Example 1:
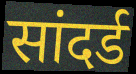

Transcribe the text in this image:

सांदर्ड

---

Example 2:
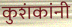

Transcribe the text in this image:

कुशंकांनी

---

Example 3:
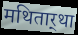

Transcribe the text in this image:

मथितार्था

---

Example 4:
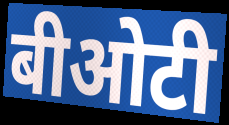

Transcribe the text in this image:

बीओटी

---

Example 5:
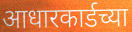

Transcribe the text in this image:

आधारकार्डच्या